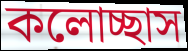
কলোচ্ছাস